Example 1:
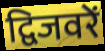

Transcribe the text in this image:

द्विजवरें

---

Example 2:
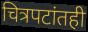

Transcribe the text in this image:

चित्रपटांतही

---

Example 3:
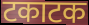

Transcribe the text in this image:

टकाटक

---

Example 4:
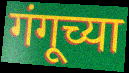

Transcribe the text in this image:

गंगूच्या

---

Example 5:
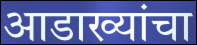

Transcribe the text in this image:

आडाख्यांचा